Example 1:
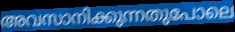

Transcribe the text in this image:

അവസാനിക്കുന്നതുപോലെ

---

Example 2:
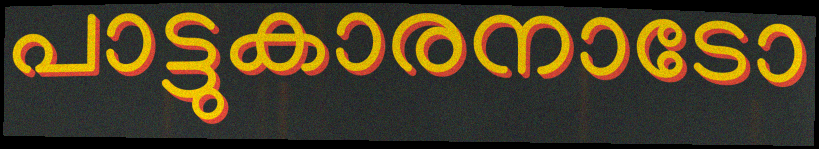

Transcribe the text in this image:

പാട്ടുകാരനാടോ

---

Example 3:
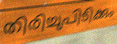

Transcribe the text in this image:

തിരിച്ചുപിടിക്കും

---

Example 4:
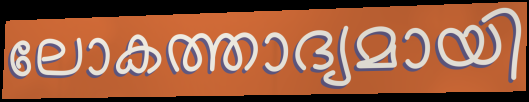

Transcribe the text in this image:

ലോകത്താദ്യമായി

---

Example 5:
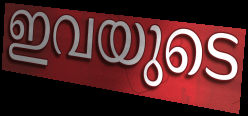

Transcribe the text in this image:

ഇവയുടെ